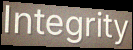
Integrity